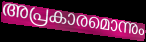
അപ്രകാരമൊന്നും